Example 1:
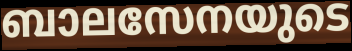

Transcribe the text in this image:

ബാലസേനയുടെ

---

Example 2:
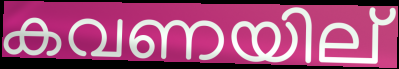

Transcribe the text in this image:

കവണയില്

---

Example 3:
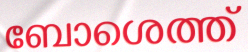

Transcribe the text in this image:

ബോശെത്ത്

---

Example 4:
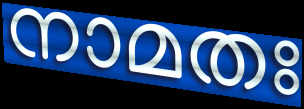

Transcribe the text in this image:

നാമതഃ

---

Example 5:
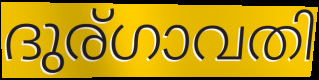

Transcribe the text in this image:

ദുര്ഗാവതി